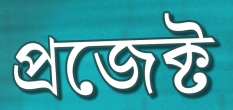
প্রজেক্ট